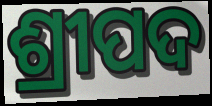
ଶ୍ରୀପଦ